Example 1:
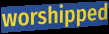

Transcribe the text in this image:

worshipped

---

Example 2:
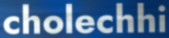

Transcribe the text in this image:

cholechhi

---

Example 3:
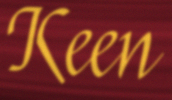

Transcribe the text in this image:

Keen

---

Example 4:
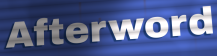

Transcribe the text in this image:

Afterword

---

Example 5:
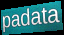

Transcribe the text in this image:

padata